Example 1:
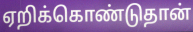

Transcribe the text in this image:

ஏறிக்கொண்டுதான்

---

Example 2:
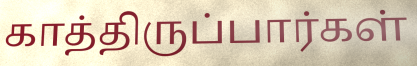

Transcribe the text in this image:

காத்திருப்பார்கள்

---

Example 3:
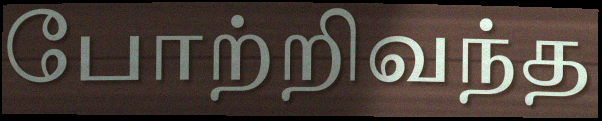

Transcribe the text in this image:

போற்றிவந்த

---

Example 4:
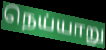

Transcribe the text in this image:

நெய்யாறு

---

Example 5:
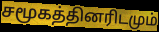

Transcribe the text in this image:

சமூகத்தினரிடமும்